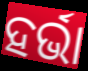
ହର୍ଭା